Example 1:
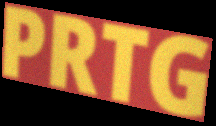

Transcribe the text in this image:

PRTG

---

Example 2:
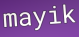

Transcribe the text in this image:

mayik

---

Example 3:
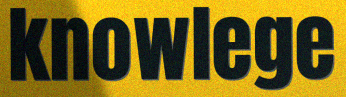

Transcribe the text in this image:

knowlege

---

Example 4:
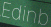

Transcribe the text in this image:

Edinb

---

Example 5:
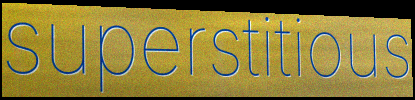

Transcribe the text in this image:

superstitious